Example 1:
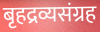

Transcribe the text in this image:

बृहद्रव्यसंग्रह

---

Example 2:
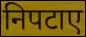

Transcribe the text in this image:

निपटाए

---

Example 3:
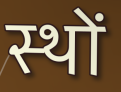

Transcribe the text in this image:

स्थों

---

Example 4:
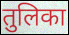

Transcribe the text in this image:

तुलिका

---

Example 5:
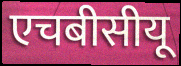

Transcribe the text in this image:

एचबीसीयू